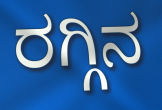
ರಗ್ಗಿನ